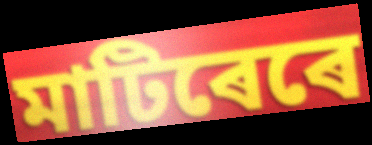
মাটিৰেৰে